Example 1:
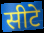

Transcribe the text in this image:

सीटे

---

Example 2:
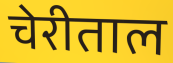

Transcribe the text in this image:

चेरीताल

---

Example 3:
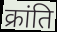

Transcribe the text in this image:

क्रांति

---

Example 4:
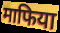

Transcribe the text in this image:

माफिया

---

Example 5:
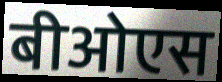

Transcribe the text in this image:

बीओएस